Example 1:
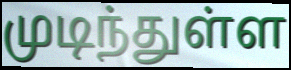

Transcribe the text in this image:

முடிந்துள்ள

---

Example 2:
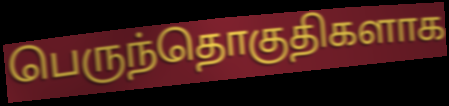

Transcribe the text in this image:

பெருந்தொகுதிகளாக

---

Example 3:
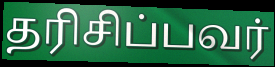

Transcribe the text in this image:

தரிசிப்பவர்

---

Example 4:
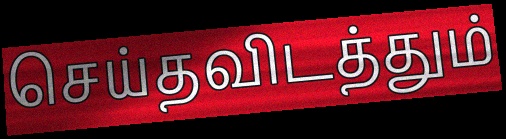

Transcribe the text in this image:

செய்தவிடத்தும்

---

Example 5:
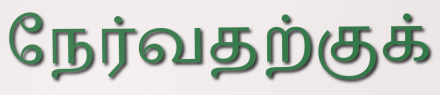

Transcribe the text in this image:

நேர்வதற்குக்